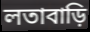
লতাবাড়ি